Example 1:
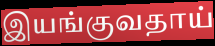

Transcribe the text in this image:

இயங்குவதாய்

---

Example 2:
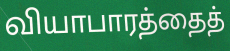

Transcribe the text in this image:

வியாபாரத்தைத்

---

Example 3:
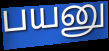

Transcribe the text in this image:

பயனு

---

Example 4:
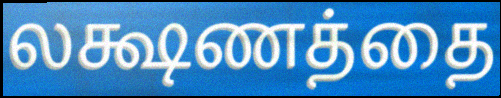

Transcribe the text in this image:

லக்ஷணத்தை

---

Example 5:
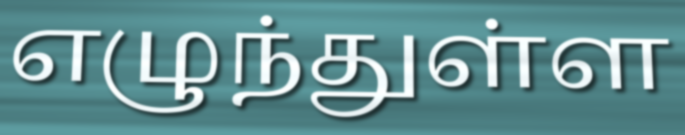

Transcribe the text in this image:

எழுந்துள்ள